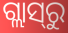
ଗ୍ଲାସ୍‍ରୁ